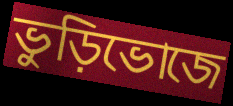
ভুড়িভোজে